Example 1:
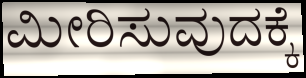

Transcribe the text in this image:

ಮೀರಿಸುವುದಕ್ಕೆ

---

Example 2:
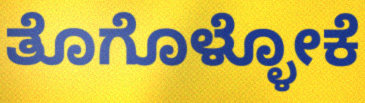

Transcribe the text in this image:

ತೊಗೊಳ್ಳೋಕೆ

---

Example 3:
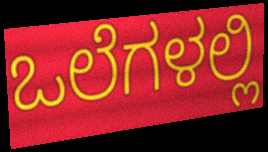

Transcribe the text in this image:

ಒಲೆಗಳಲ್ಲಿ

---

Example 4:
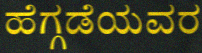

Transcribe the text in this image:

ಹೆಗ್ಗಡೆಯವರ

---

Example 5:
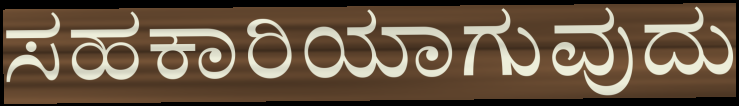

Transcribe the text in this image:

ಸಹಕಾರಿಯಾಗುವುದು